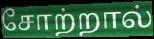
சோற்றால்